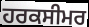
ਹਰਕਸੀਮਰ